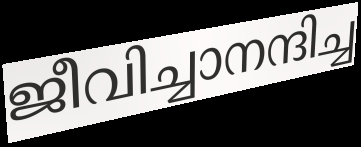
ജീവിച്ചാനന്ദിച്ച